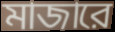
মাজারে